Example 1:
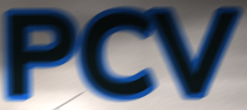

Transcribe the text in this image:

PCV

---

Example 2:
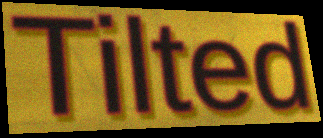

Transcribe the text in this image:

Tilted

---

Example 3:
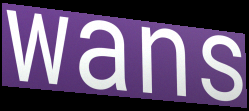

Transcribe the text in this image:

wans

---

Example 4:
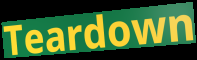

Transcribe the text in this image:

Teardown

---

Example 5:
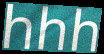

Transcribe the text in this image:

hhh